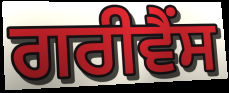
ਗਰੀਵੈਂਸ